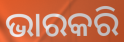
ଭାରକରି